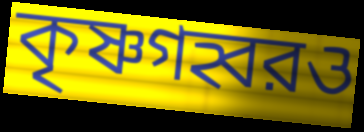
কৃষ্ণগহ্বরও